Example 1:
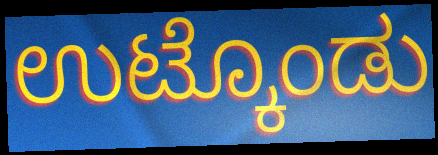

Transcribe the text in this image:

ಉಟ್ಕೊಂಡು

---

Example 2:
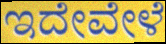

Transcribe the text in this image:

ಇದೇವೇಳೆ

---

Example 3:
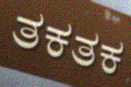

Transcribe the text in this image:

ತಕತಕ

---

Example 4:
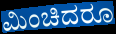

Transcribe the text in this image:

ಮಿಂಚಿದರೂ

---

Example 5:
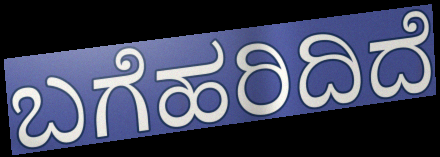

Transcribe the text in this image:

ಬಗೆಹರಿದಿದೆ